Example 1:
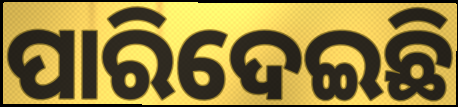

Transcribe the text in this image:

ପାରିଦେଇଛି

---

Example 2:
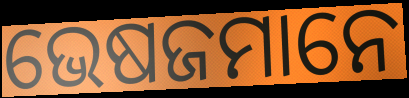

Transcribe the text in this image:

ଭେଷଜମାନେ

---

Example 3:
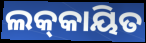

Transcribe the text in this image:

ଲକ୍‌କାୟିତ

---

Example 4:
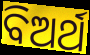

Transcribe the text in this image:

ବିଅର୍ଥ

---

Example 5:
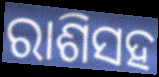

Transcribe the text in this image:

ରାଶିସହ